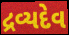
દ્રવ્યદેવ